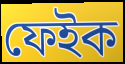
ফেইক